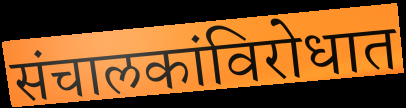
संचालकांविरोधात